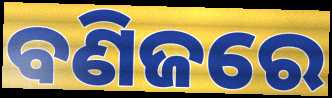
ବଣିଜରେ